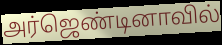
அர்ஜெண்டினாவில்